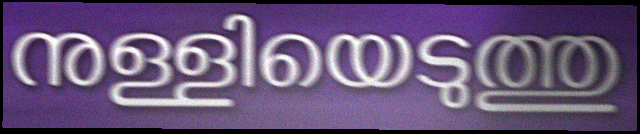
നുള്ളിയെടുത്തു